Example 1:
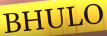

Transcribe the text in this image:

BHULO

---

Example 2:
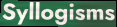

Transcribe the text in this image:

Syllogisms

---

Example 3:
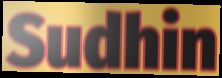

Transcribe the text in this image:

Sudhin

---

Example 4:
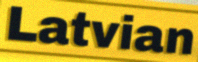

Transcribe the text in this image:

Latvian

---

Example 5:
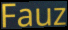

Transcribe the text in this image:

Fauz